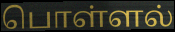
பொள்ளல்